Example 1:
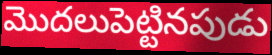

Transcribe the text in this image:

మొదలుపెట్టినపుడు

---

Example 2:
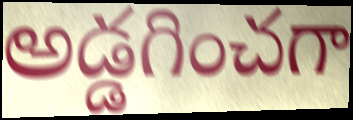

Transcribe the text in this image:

అడ్డగించగా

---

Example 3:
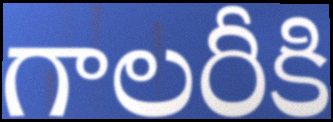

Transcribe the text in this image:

గాలరీకి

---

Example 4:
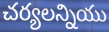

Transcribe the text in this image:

చర్యలన్నియు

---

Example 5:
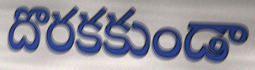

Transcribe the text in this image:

దొరకకుండా